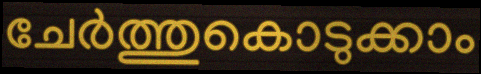
ചേർത്തുകൊടുക്കാം